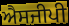
ਐਸਜੀਪੀ